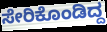
ಸೇರಿಕೊಂಡಿದ್ದ